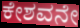
ಕೇಶವನೇ